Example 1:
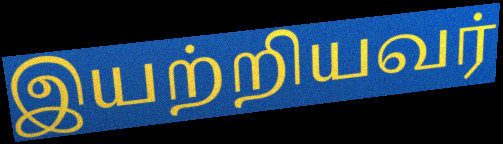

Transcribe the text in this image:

இயற்றியவர்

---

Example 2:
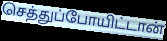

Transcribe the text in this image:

செத்துப்போயிட்டான்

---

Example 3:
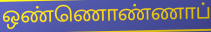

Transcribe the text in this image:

ஒண்ணொண்ணாப்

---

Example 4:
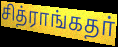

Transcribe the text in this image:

சித்ராங்கதர்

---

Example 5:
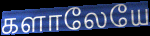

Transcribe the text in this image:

களாலேயே